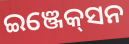
ଇଞ୍ଜେକ୍‌ସନ